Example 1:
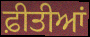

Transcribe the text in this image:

ਫ਼ੀਤੀਆਂ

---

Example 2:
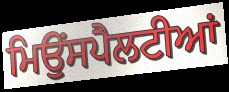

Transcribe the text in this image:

ਮਿਉਂਸਪੈਲਟੀਆਂ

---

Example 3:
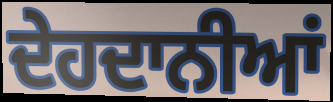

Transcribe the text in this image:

ਦੇਹਦਾਨੀਆਂ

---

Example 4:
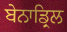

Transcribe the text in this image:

ਬੇਨਾਡ੍ਰਿਲ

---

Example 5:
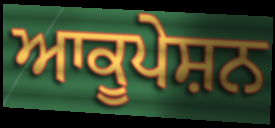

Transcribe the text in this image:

ਆਕੂਪੇਸ਼ਨ